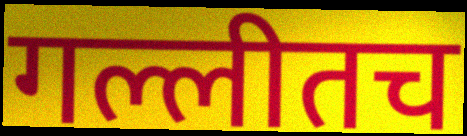
गल्लीतच